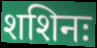
शशिनः